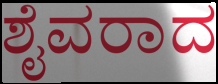
ಶೈವರಾದ